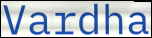
Vardha